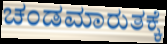
ಚಂಡಮಾರುತಕ್ಕೆ